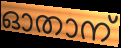
ഓതാന്